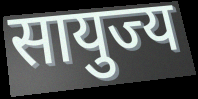
सायुज्य